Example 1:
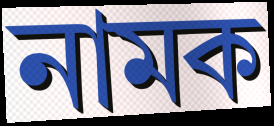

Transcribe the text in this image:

নামক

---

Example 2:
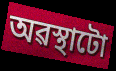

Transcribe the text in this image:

অৱস্থাটো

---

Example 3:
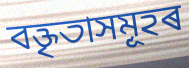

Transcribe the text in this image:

বক্তৃতাসমূহৰ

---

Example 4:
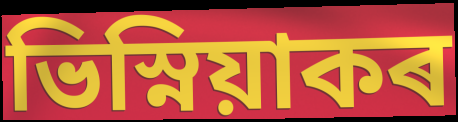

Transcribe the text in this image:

ভিস্নিয়াকৰ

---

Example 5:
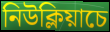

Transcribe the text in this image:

নিউক্লিয়াচে